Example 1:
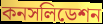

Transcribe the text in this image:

কনসলিডেশন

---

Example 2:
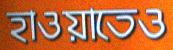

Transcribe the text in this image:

হাওয়াতেও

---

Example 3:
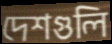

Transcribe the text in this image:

দেশগুলি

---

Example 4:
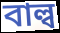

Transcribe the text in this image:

বাল্ব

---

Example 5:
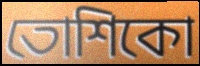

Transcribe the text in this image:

তোশিকো